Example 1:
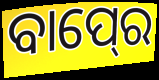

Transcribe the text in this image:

ବାପ୍‍ରେ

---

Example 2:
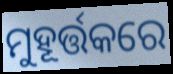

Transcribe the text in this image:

ମୁହୂର୍ତ୍ତକରେ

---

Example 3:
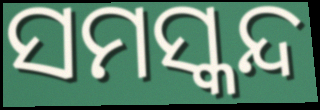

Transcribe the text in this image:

ସମସ୍କନ୍ଦ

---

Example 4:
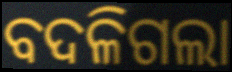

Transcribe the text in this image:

ବଦଳିଗଲା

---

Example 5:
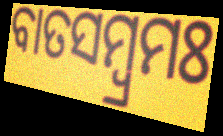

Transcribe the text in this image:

ବାତସମ୍ବ୍ରମଃ